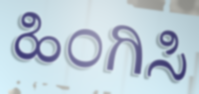
ಹಿಂಗಿಸಿ